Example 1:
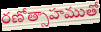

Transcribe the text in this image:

రణోత్సాహముతో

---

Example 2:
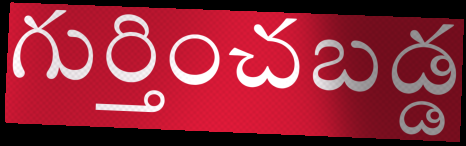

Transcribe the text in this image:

గుర్తించబడ్డ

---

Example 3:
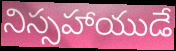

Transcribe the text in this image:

నిస్సహాయుడే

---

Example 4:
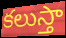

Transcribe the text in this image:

కలుస్తా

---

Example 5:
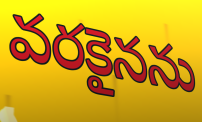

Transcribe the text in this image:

వరకైనను